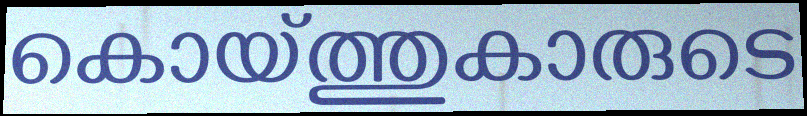
കൊയ്ത്തുകാരുടെ